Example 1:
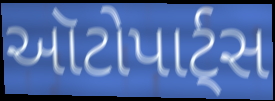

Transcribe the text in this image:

ઑટોપાર્ટ્સ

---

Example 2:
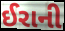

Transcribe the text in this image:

ઈરાની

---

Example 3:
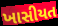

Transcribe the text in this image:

ખાસીયત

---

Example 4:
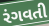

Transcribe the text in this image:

રંગવતી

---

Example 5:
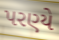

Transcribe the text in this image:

પરણ્યે